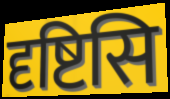
दृष्टिसि